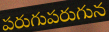
పరుగుపరుగున